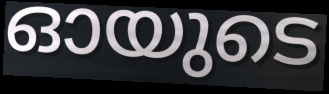
ഓയുടെ